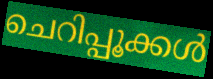
ചെറിപ്പൂക്കൾ